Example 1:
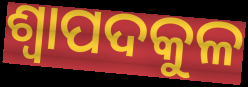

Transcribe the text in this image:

ଶ୍ୱାପଦକୁଳ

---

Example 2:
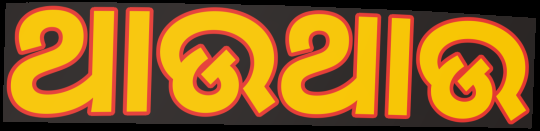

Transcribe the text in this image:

ଥାଉଥାଉ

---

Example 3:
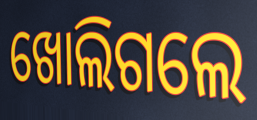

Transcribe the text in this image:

ଖୋଲିଗଲେ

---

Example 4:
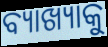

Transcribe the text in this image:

ବ୍ୟାଖ୍ୟାକୁ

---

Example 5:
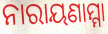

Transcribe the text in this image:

ନାରାୟଣାମ୍ମା